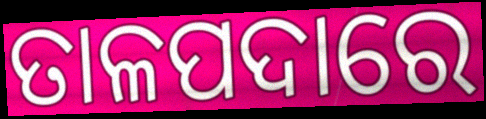
ତାଳପଦାରେ